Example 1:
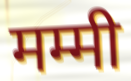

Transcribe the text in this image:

मम्मी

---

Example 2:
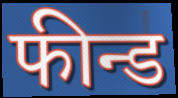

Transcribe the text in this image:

फीन्ड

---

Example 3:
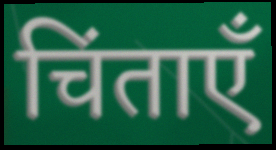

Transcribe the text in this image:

चिंताएँ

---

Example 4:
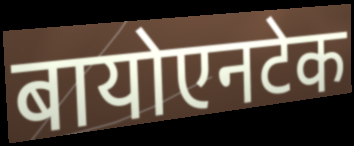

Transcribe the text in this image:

बायोएनटेक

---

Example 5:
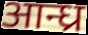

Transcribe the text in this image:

आन्ध्र